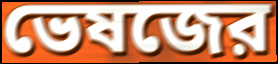
ভেষজের